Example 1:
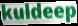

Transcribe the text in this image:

kuldeep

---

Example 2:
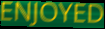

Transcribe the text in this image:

ENJOYED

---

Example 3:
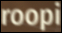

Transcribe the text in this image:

roopi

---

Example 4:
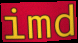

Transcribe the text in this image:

imd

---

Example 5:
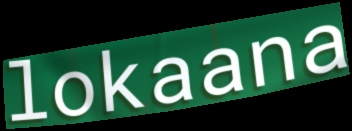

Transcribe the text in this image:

lokaana